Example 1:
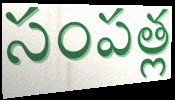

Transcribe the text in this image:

సంపత్ల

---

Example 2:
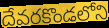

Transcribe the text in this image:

దేవరకొండలోని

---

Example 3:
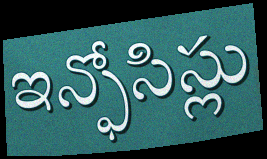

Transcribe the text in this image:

ఇన్ఫోసిస్లు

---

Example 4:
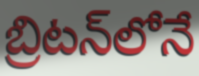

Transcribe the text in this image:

బ్రిటన్‌లోనే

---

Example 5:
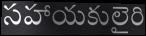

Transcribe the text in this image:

సహాయకులైరి